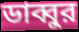
ডাব্বুর